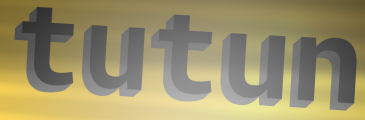
tutun